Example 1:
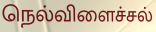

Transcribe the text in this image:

நெல்விளைச்சல்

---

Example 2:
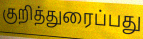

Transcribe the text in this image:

குறித்துரைப்பது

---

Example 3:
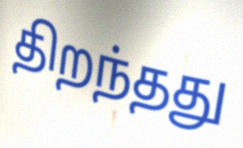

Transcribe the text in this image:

திறந்தது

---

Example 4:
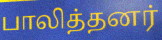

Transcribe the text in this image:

பாலித்தனர்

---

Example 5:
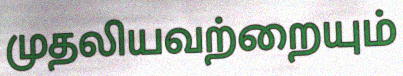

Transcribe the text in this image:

முதலியவற்றையும்